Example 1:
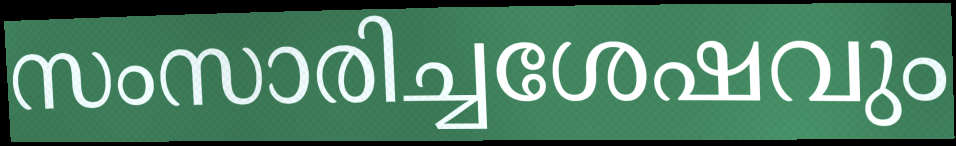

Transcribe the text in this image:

സംസാരിച്ചശേഷവും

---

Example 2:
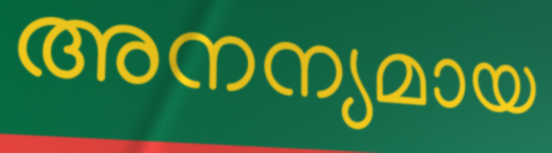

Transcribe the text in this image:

അനന്യമായ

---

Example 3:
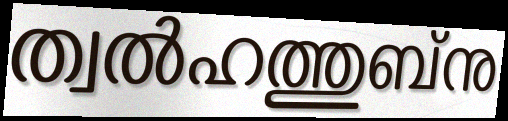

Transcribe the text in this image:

ത്വൽഹത്തുബ്നു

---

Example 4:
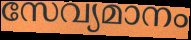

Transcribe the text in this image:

സേവ്യമാനം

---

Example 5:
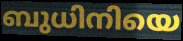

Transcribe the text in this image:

ബുധിനിയെ